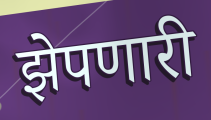
झेपणारी